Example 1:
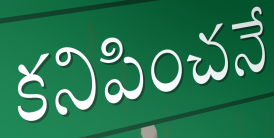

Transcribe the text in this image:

కనిపించనే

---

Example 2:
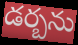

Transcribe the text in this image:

డర్బను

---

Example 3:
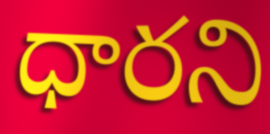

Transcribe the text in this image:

ధారని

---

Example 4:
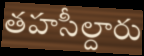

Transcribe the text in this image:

తహసీల్దారు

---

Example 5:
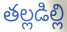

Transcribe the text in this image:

తల్లడిల్లి